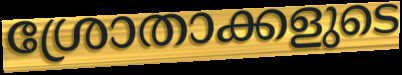
ശ്രോതാക്കളുടെ